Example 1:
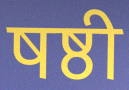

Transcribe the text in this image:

षष्ठी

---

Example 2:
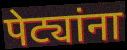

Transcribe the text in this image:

पेट्यांना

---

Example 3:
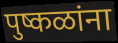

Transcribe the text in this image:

पुष्कळांना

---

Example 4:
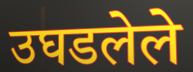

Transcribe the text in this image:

उघडलेले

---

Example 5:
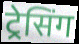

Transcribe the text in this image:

ट्रेसिंग